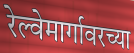
रेल्वेमार्गावरच्या